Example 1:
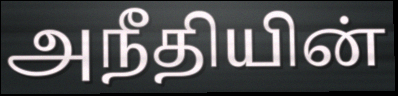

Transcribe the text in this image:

அநீதியின்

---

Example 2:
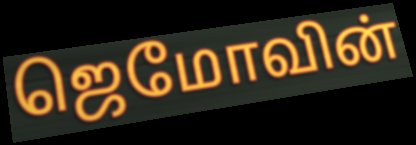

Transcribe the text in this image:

ஜெமோவின்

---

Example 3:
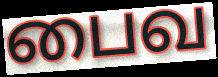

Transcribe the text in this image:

பைவ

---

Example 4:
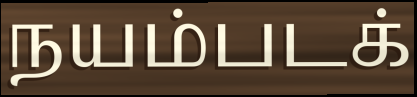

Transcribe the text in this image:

நயம்படக்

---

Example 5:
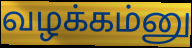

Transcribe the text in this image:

வழக்கம்னு